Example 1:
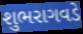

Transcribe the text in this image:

શુભરાગવડે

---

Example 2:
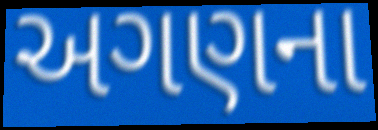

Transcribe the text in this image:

અગણના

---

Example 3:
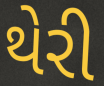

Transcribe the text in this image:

થેરી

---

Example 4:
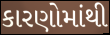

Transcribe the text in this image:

કારણોમાંથી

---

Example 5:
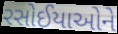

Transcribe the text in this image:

રસોઈયાઓને